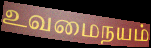
உவமைநயம்